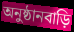
অনুষ্ঠানবাড়ি